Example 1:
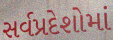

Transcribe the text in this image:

સર્વપ્રદેશોમાં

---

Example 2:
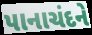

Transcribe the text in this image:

પાનાચંદને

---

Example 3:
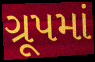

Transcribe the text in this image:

ગ્રૂપમાં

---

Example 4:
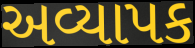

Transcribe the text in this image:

અવ્યાપક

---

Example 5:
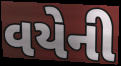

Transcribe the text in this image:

વયેની